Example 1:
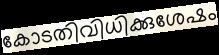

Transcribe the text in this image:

കോടതിവിധിക്കുശേഷം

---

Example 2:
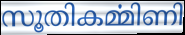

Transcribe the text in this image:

സൂതികൎമ്മിണി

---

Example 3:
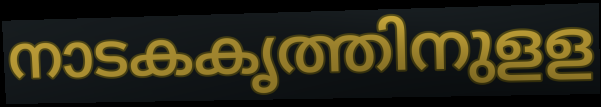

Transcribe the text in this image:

നാടകകൃത്തിനുളള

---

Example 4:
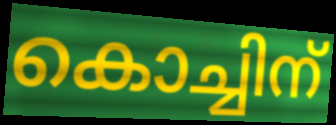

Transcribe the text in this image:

കൊച്ചിന്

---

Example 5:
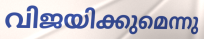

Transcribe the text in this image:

വിജയിക്കുമെന്നു